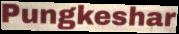
Pungkeshar